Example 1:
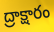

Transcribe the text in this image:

ద్రాక్షారం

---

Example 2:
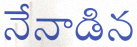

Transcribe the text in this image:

నేనాడిన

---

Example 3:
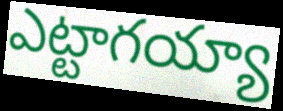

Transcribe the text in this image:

ఎట్టాగయ్యా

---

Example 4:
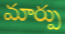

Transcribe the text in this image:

మార్పు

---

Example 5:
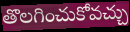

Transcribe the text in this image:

తొలగించుకోవచ్చు